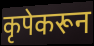
कृपेकरून